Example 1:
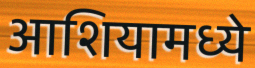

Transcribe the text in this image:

आशियामध्ये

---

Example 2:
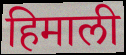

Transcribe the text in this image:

हिमाली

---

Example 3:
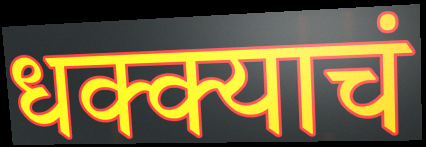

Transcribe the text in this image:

धक्क्याचं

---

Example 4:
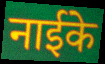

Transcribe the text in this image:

नाईके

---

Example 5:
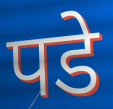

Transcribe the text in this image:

पडे